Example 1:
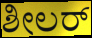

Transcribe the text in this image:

ಶೀಲರ್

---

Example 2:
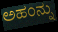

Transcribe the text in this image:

ಅಹಂನ್ನು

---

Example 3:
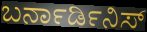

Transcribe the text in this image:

ಬರ್ನಾರ್ಡಿನಿಸ್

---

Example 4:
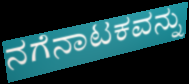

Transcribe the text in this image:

ನಗೆನಾಟಕವನ್ನು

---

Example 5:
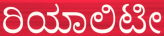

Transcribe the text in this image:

ರಿಯಾಲಿಟೀ